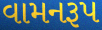
વામનરૂપ